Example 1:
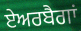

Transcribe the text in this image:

ਏਅਰਬੈਗਾਂ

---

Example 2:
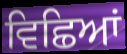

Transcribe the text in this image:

ਵਿਛਿਆਂ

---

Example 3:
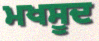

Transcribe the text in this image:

ਮਖਸੂਦ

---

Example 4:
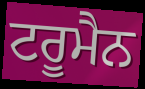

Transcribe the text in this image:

ਟਰੂਮੈਨ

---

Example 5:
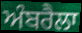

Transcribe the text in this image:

ਅੰਬਰੈਲਾ